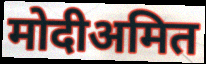
मोदीअमित